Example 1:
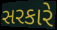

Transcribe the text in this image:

સરકારે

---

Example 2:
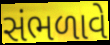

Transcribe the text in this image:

સંભળાવે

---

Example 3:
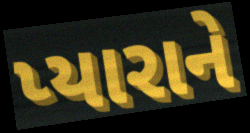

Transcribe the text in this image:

પ્યારાને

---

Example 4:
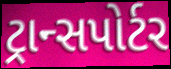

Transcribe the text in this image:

ટ્રાન્સપોર્ટર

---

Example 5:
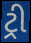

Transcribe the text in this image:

ટ્રી